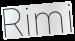
Rimi